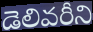
డెలివరీని